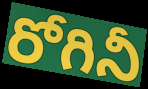
రోగినీ